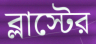
ব্লাস্টের